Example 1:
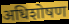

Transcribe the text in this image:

अधिशोषण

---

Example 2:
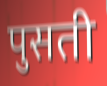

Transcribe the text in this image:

पुसती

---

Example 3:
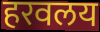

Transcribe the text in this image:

हरवलय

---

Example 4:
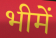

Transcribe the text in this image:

भीमें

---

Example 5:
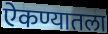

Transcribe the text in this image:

ऐकण्यातला